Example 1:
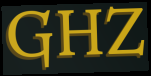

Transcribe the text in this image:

GHZ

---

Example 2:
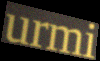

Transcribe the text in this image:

urmi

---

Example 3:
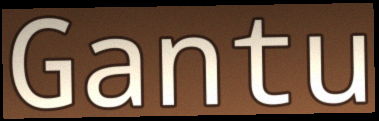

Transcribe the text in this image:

Gantu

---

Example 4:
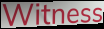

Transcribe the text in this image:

Witness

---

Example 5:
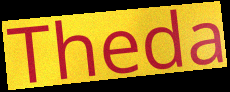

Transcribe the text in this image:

Theda